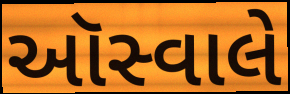
ઑસ્વાલે